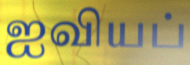
ஐவியப்